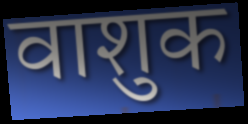
वाशुक